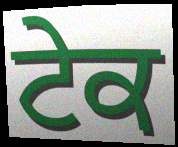
ਟੇਕ